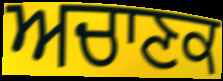
ਅਚਾਣਕ